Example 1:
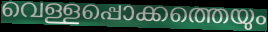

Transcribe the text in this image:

വെള്ളപ്പൊക്കത്തെയും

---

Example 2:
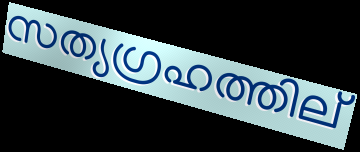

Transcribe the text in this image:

സത്യഗ്രഹത്തില്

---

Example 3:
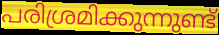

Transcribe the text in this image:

പരിശ്രമിക്കുന്നുണ്ട്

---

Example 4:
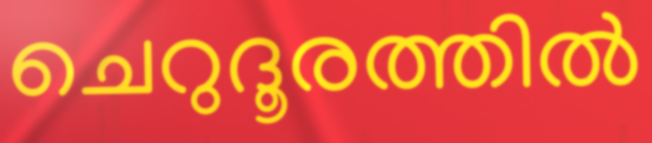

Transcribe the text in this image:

ചെറുദൂരത്തിൽ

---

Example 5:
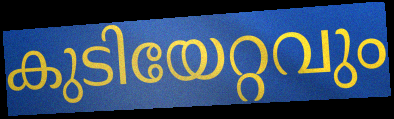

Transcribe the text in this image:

കുടിയേറ്റവും